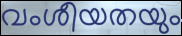
വംശീയതയും